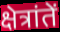
क्षेत्रांतें